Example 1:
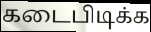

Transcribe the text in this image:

கடைபிடிக்க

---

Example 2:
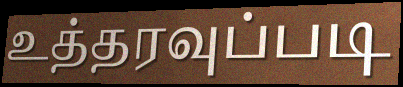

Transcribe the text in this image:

உத்தரவுப்படி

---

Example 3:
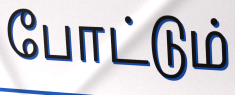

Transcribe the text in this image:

போட்டும்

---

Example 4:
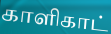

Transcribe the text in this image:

காளிகாட்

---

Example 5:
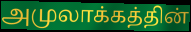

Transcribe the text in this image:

அமுலாக்கத்தின்